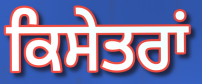
ਕਿਸੇਤਰਾਂ